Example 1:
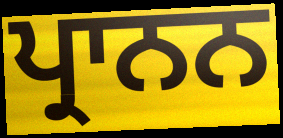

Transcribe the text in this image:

ਪ੍ਰਾਨਨ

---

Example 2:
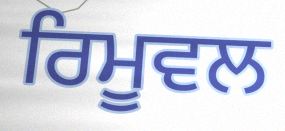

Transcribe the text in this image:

ਰਿਮੂਵਲ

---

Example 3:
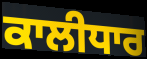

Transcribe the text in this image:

ਕਾਲੀਧਾਰ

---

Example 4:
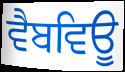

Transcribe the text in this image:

ਵੈਬਵਿਊ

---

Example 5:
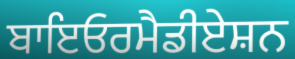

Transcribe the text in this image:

ਬਾਇਓਰਮੈਡੀਏਸ਼ਨ